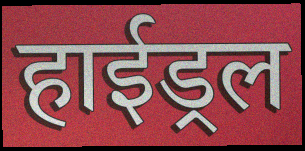
हाईड्रल